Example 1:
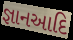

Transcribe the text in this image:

જ્ઞાનઆદિ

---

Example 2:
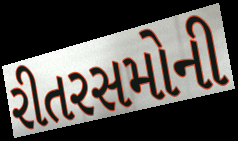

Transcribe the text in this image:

રીતરસમોની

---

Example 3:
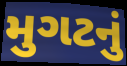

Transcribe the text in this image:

મુગટનું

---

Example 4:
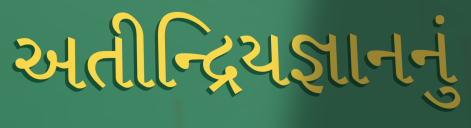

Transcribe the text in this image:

અતીન્દ્રિયજ્ઞાનનું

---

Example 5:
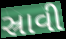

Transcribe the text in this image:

સ્રાવી